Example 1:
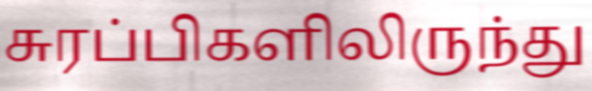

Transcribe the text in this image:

சுரப்பிகளிலிருந்து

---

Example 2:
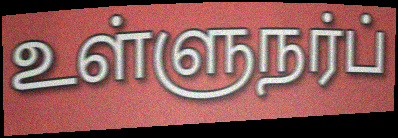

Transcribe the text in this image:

உள்ளுநர்ப்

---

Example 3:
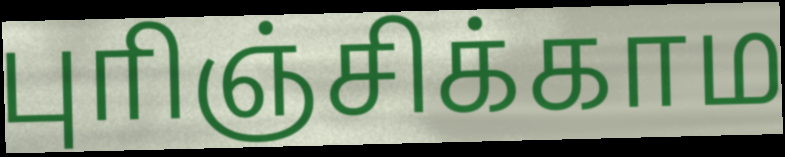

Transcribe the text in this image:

புரிஞ்சிக்காம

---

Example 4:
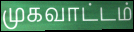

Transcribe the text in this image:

முகவாட்டம்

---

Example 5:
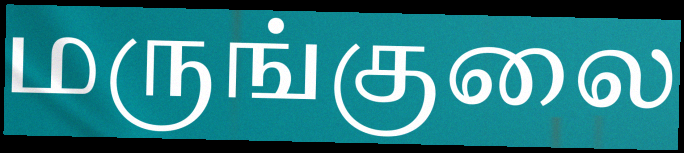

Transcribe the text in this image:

மருங்குலை